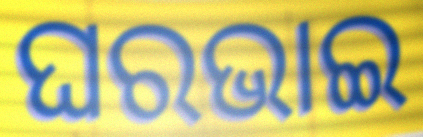
ଘରଭାଇ